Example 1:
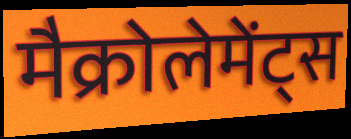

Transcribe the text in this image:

मैक्रोलेमेंट्स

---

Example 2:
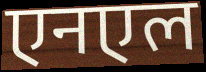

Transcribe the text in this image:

एनएल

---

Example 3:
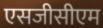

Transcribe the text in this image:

एसजीसीएम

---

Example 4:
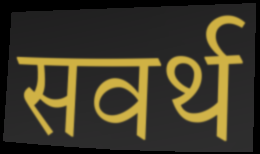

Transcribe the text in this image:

सवर्थ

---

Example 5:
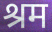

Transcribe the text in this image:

श्रम